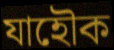
যাহৌক